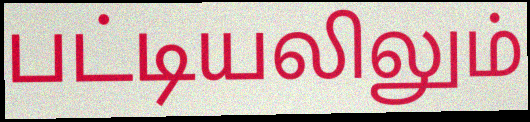
பட்டியலிலும்